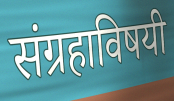
संग्रहाविषयी